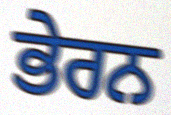
ਭੇਰਨ